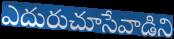
ఎదురుచూసేవాడిని